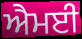
ਐਮਈ